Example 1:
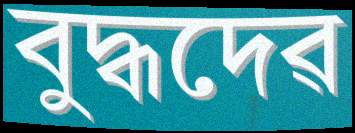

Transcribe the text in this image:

বুদ্ধদেৱ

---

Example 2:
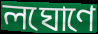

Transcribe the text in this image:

লঘোণে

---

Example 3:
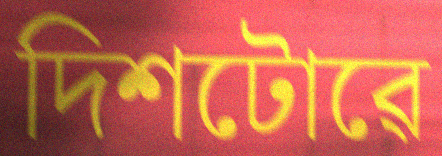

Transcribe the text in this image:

দিশটোৱে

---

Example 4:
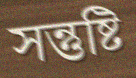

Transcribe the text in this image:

সন্তুষ্টি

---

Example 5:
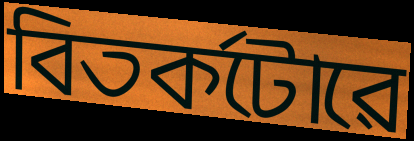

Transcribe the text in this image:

বিতৰ্কটোৱে